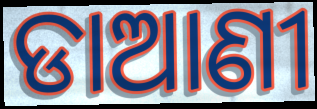
ଡାଆଣୀ